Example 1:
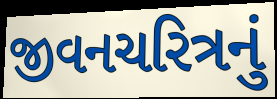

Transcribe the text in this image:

જીવનચરિત્રનું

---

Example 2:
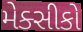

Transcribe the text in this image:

મેક્સીકો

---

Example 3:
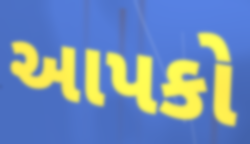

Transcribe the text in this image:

આપકો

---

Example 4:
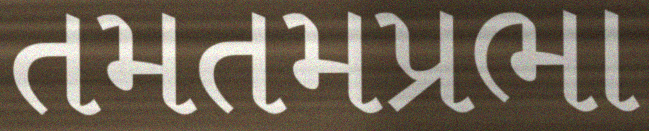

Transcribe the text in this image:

તમતમપ્રભા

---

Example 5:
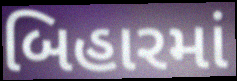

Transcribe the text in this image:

બિહારમાં